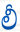
లీ